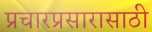
प्रचारप्रसारासाठी